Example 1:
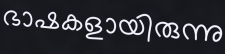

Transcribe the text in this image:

ഭാഷകളായിരുന്നു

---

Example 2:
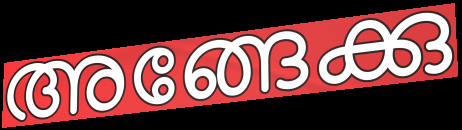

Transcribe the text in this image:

അങ്ങേക്കു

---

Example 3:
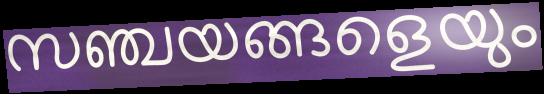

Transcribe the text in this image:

സഞ്ചയങ്ങളെയും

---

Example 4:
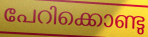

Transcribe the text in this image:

പേറിക്കൊണ്ടു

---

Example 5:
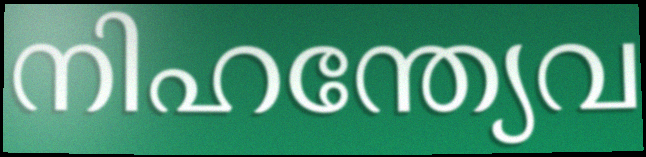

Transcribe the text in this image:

നിഹന്ത്യേവ